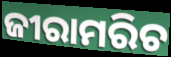
ଜୀରାମରିଚ